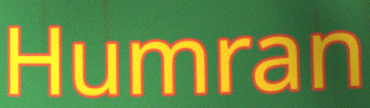
Humran